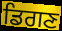
ਡਿਗਣ